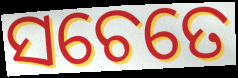
ସଚେତେ